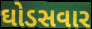
ઘોડસવાર